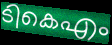
ടികെഎം